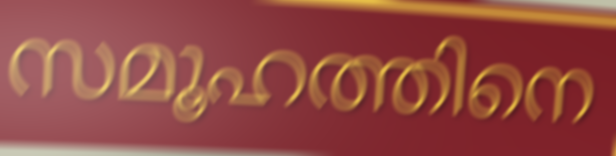
സമൂഹത്തിനെ